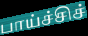
பாய்ச்சிச்